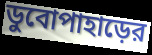
ডুবোপাহাড়ের